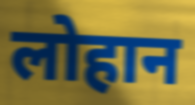
लोहान